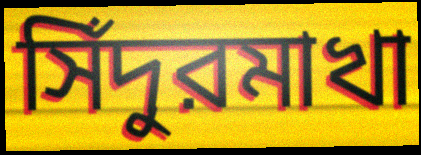
সিঁদুরমাখা